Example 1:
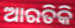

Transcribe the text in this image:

ଆରତିକି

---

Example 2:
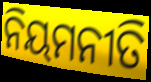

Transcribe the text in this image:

ନିୟମନୀତି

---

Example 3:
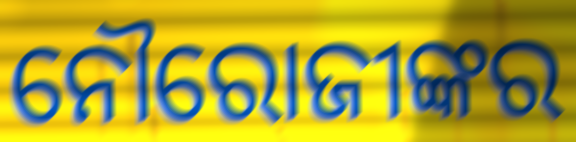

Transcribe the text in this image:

ନୌରୋଜୀଙ୍କର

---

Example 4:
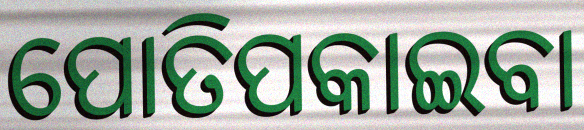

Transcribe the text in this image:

ପୋତିପକାଇବା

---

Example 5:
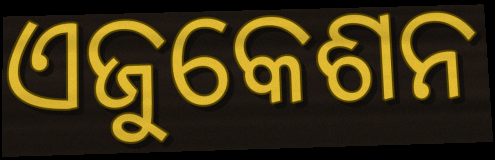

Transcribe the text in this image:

ଏଜୁକେଶନ